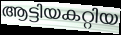
ആട്ടിയകറ്റിയ